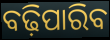
ବଢ଼ିପାରିବ